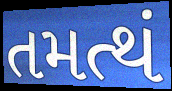
તમત્થં